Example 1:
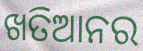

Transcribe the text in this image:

ଖତିଆନର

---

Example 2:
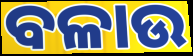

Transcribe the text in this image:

ବଳାଉ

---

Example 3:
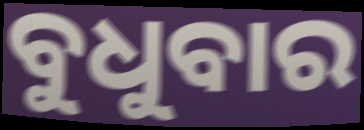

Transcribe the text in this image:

ବୁଧୁବାର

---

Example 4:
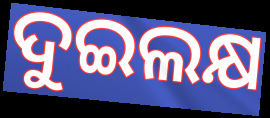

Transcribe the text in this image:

ଦୁଇଲକ୍ଷ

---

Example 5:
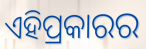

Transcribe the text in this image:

ଏହିପ୍ରକାରର